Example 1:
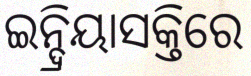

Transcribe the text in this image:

ଇନ୍ଦ୍ରିୟାସକ୍ତିରେ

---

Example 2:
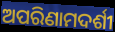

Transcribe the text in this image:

ଅପରିଣାମଦର୍ଶୀ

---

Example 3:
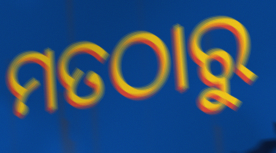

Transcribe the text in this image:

ମତଠାରୁ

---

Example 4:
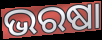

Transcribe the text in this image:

ଭରଷା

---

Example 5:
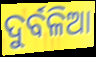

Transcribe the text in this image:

ଦୁର୍ବଳିଆ